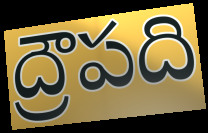
ద్రౌపది